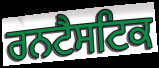
ਰਨਟੈਸਟਿਕ